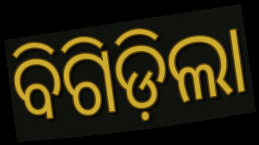
ବିଗିଡ଼ିଲା